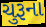
ચુરૂના